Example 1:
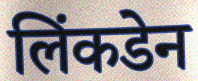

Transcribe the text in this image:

लिंकडेन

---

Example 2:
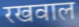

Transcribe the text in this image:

रखवाल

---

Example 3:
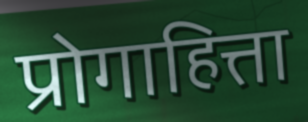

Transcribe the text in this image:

प्रोगाहित्ता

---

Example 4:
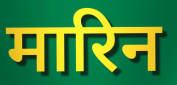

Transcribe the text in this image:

मारिन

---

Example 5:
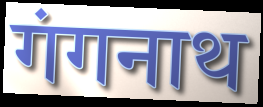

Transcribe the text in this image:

गंगनाथ